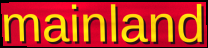
mainland